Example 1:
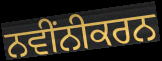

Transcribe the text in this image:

ਨਵੀਂਨੀਕਰਨ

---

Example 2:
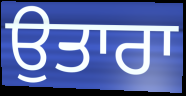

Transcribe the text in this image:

ਉਤਾਰਾ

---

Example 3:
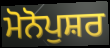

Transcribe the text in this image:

ਮੋਨੋਪੁਸ਼ਰ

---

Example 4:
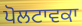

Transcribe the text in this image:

ਪੋਲਟਾਵਕਾ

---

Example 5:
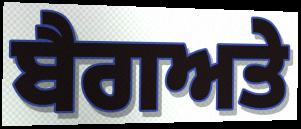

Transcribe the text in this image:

ਬੈਗਅਤੇ